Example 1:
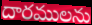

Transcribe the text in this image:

దారములను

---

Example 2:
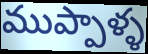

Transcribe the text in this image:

ముప్పాళ్ళ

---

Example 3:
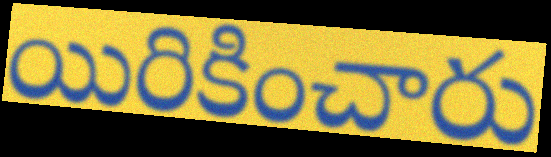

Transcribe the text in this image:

యిరికించారు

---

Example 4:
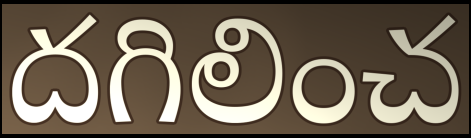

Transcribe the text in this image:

దగిలించ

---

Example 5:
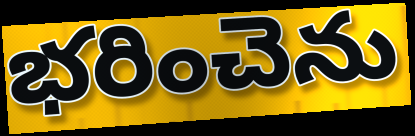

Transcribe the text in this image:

భరించెను